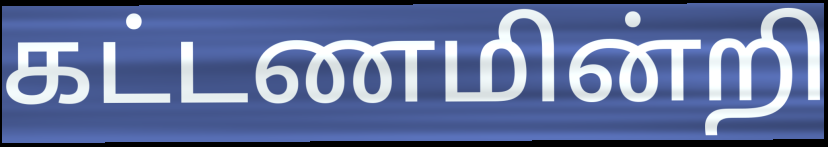
கட்டணமின்றி